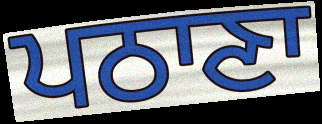
ਪਠਾਣਾ